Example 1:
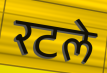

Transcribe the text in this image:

रटले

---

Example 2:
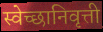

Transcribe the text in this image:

स्वेच्छानिवृत्ती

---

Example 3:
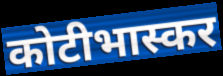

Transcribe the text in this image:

कोटीभास्कर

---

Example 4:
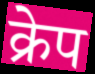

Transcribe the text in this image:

क्रेप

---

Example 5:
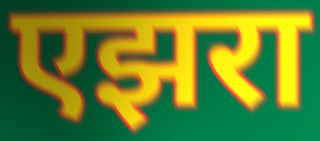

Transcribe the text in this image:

एझरा